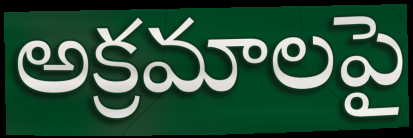
అక్రమాలపై